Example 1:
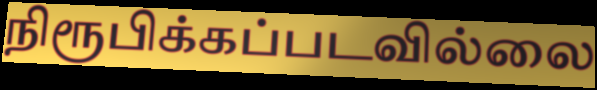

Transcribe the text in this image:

நிரூபிக்கப்படவில்லை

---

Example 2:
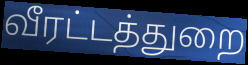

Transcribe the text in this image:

வீரட்டத்துறை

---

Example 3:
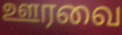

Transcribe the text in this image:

ஊரவை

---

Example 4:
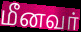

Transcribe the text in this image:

மீனவர்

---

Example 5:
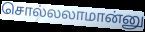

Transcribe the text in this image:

சொல்லலாமான்னு